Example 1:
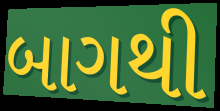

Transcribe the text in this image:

બાગથી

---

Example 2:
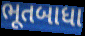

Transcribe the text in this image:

ભૂતબાધા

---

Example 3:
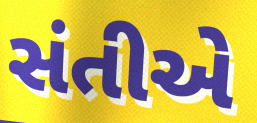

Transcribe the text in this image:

સંતીએ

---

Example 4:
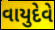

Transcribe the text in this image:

વાયુદેવે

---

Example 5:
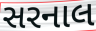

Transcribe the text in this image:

સરનાલ